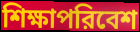
শিক্ষাপরিবেশ